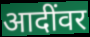
आदींवर